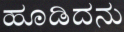
ಹೂಡಿದನು